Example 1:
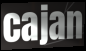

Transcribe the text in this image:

cajan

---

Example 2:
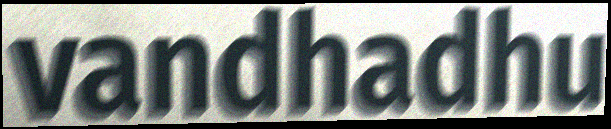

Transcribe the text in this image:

vandhadhu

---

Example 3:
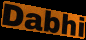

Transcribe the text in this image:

Dabhi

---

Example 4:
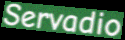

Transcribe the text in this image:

Servadio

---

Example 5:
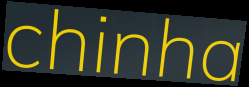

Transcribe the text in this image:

chinha